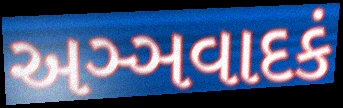
અઞ્ઞવાદકં